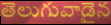
తెలుగువాడైన